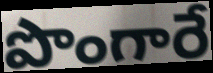
పొంగారే